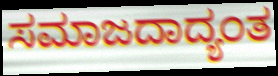
ಸಮಾಜದಾದ್ಯಂತ